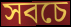
সবচে